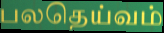
பலதெய்வம்